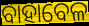
ବାହାବେଳ